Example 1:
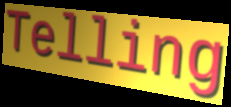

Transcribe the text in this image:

Telling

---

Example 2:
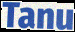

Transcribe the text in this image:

Tanu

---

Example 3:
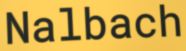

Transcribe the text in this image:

Nalbach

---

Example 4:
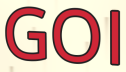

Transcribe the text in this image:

GOI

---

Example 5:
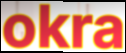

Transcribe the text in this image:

okra